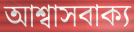
আশ্বাসবাক্য